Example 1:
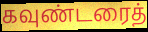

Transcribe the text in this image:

கவுண்டரைத்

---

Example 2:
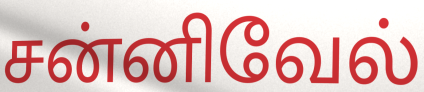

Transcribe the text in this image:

சன்னிவேல்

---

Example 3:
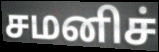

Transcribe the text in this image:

சமனிச்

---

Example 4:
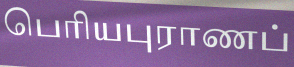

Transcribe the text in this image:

பெரியபுராணப்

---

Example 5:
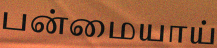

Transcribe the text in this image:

பன்மையாய்